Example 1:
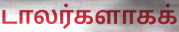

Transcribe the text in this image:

டாலர்களாகக்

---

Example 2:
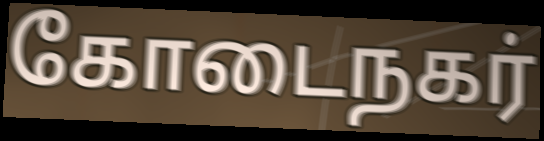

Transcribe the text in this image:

கோடைநகர்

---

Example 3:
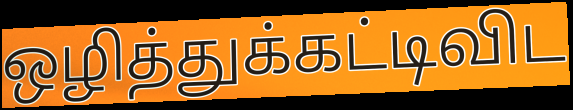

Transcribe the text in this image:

ஒழித்துக்கட்டிவிட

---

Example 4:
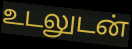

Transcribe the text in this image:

உடலுடன்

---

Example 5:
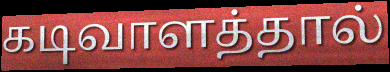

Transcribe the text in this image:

கடிவாளத்தால்